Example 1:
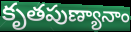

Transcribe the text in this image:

కృతపుణ్యానాం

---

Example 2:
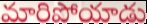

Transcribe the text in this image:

మారిపోయాడు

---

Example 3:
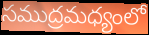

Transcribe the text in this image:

సముద్రమధ్యంలో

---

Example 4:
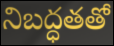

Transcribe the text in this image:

నిబద్ధతతో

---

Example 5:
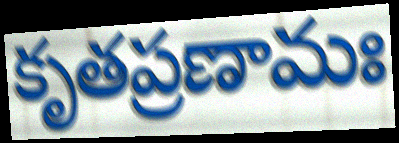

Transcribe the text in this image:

కృతప్రణామః